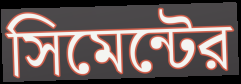
সিমেন্টের